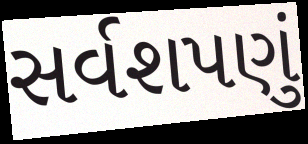
સર્વશપણું